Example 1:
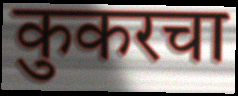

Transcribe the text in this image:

कुकरचा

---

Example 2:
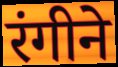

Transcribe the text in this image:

रंगीने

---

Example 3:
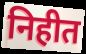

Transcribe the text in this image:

निहीत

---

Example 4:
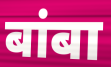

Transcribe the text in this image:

बांबा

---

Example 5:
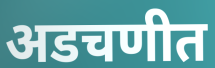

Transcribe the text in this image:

अडचणीत